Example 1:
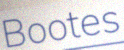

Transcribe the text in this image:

Bootes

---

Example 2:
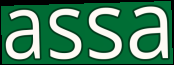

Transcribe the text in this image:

assa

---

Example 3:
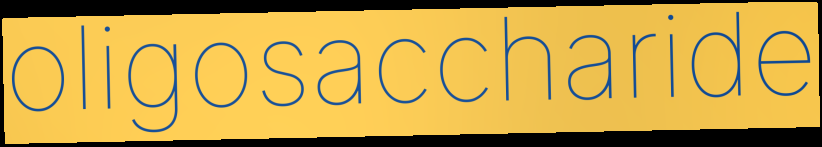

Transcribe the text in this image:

oligosaccharide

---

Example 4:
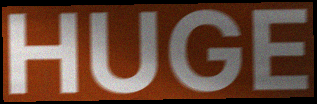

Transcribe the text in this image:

HUGE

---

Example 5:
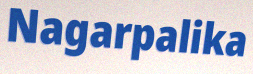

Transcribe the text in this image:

Nagarpalika